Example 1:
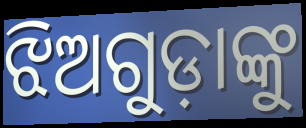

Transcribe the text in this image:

ଝିଅଗୁଡ଼ାଙ୍କୁ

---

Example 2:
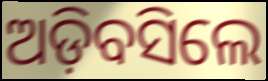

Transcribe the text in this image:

ଅଡ଼ିବସିଲେ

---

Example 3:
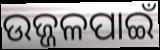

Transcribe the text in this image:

ଉଜ୍ଜଳପାଇଁ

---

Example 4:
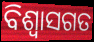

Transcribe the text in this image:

ବିଶ୍ଵାସଗତ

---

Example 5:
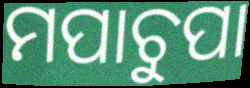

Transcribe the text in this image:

ମପାଚୁପା